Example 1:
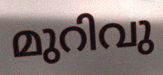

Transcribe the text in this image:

മുറിവു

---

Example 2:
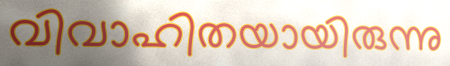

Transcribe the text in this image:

വിവാഹിതയായിരുന്നു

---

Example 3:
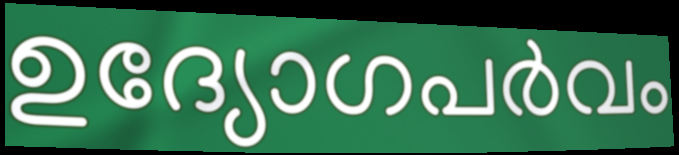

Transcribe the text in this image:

ഉദ്യോഗപർവം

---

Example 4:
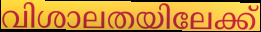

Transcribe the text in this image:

വിശാലതയിലേക്ക്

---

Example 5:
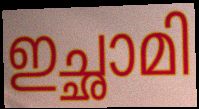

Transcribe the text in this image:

ഇച്ഛാമി